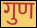
गुण